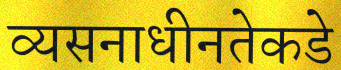
व्यसनाधीनतेकडे